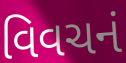
વિવચનં